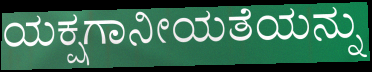
ಯಕ್ಷಗಾನೀಯತೆಯನ್ನು